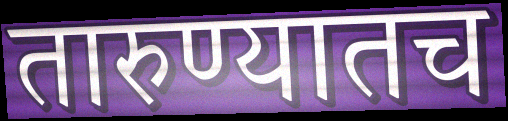
तारुण्यातच